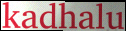
kadhalu